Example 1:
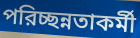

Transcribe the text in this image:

পরিচ্ছন্নতাকর্মী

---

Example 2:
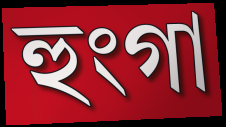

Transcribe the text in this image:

হুংগা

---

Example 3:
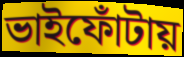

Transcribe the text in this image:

ভাইফোঁটায়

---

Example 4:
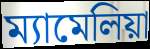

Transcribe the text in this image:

ম্যামেলিয়া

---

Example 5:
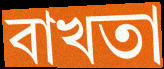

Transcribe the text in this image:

বাখতা